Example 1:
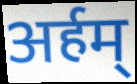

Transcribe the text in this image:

अर्हम्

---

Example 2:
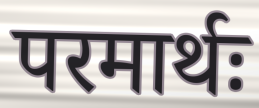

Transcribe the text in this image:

परमार्थः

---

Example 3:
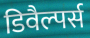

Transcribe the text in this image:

डिवैल्पर्स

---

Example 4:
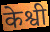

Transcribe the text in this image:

केश्वी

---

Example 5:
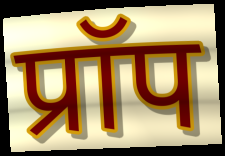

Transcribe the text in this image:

प्रॉप